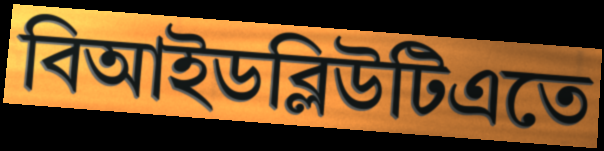
বিআইডব্লিউটিএতে